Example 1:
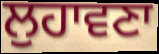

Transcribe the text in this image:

ਲੁਹਾਵਣਾ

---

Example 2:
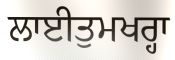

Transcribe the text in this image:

ਲਾਈਤੁਮਖਰ੍ਹਾ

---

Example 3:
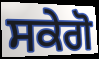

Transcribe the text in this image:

ਸਕੇਗੋ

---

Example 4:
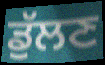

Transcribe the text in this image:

ਡੁੱਲਣ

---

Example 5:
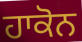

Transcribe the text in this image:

ਹਾਕੋਨ